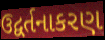
ઉદ્વર્તનાકરણ